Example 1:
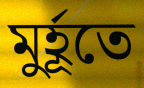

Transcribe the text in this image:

মুর্হূতে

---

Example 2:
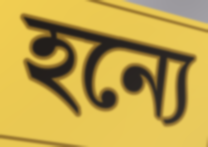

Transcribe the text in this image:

হন্যে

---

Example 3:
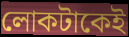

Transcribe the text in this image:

লোকটাকেই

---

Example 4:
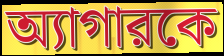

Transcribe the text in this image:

অ্যাগারকে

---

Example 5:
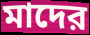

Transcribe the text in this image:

মাদের